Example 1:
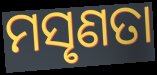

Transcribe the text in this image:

ମସୃଣତା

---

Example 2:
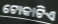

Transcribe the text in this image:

ଟୋକାଟିଏ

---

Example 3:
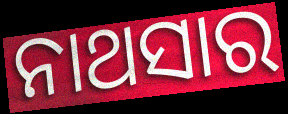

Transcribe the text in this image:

ନାଥସାର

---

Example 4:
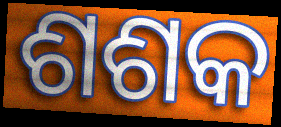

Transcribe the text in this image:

ଶଶକ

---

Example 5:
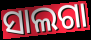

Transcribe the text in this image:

ସାଲଗା